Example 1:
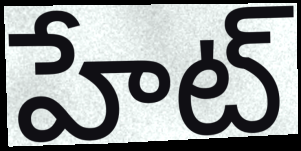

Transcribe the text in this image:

హేట్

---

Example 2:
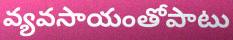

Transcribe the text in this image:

వ్యవసాయంతోపాటు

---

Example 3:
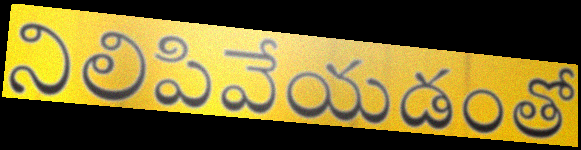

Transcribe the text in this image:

నిలిపివేయడంతో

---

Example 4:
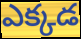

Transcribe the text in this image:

ఎక్కడ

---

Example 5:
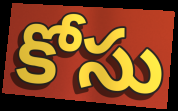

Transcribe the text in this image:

కోసు